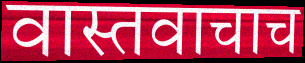
वास्तवाचाच